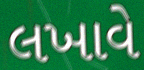
લખાવે